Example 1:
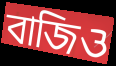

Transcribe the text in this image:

বাজিও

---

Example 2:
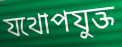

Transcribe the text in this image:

যথোপযুক্ত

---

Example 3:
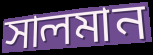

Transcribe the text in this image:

সালমান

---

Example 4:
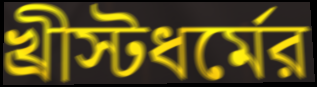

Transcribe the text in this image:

খ্রীস্টধর্মের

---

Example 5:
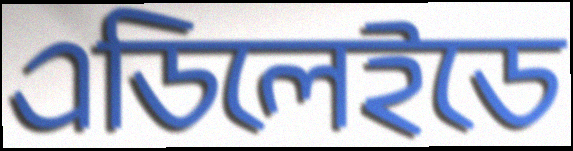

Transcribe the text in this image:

এডিলেইডে